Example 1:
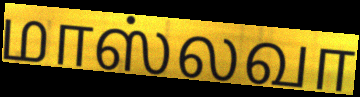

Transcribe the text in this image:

மாஸ்லவா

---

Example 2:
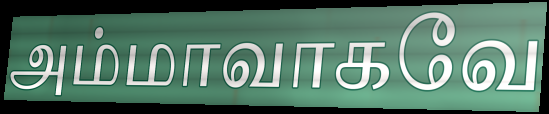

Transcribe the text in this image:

அம்மாவாகவே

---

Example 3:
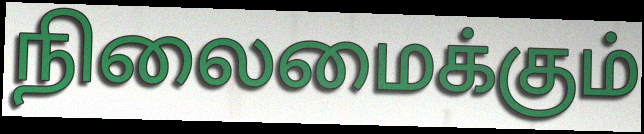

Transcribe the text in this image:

நிலைமைக்கும்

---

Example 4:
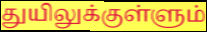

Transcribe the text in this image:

துயிலுக்குள்ளும்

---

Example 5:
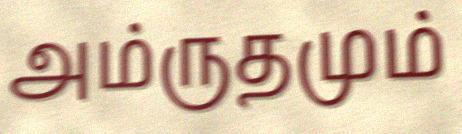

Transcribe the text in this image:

அம்ருதமும்